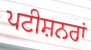
ਪਟੀਸ਼ਨਰਾਂ